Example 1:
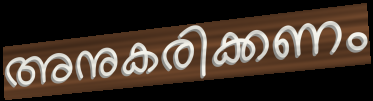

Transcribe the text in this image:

അനുകരിക്കണം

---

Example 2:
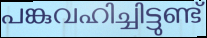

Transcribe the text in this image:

പങ്കുവഹിച്ചിട്ടുണ്ട്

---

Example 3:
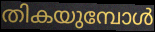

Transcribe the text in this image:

തികയുമ്പോൾ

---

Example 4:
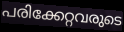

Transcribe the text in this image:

പരിക്കേറ്റവരുടെ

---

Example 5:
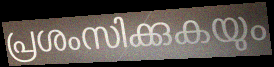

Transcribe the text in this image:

പ്രശംസിക്കുകയും